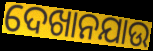
ଦେଖାନଯାଉ